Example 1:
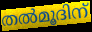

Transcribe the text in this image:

തൽമൂദിന്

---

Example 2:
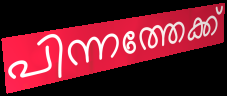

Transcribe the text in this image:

പിന്നത്തേക്ക്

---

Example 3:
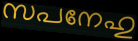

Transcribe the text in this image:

സപനേഹു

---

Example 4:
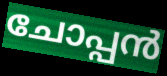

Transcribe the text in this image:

ചോപ്പൻ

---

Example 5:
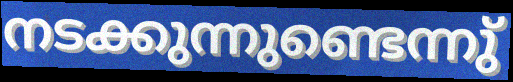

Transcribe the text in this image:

നടക്കുന്നുണ്ടെന്നു്